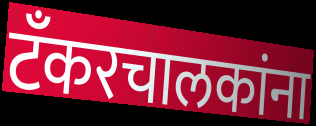
टँकरचालकांना